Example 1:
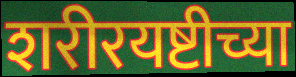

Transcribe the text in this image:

शरीरयष्टीच्या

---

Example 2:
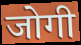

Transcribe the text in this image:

जोगी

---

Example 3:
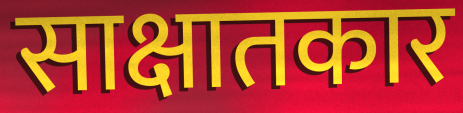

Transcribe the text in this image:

साक्षातकार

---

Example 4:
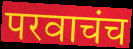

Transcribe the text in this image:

परवाचंच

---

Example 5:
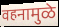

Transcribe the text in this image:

वहनामुळे